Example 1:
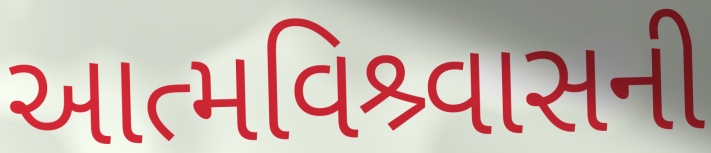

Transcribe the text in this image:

આત્મવિશ્ર્વાસની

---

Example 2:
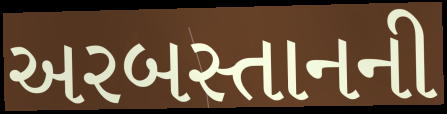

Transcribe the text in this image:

અરબસ્તાનની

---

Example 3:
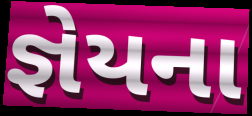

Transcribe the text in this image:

જ્ઞેયના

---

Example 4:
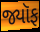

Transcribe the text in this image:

જ્યૉફ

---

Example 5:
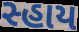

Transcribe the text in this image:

સ્હાય